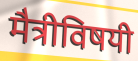
मैत्रीविषयी